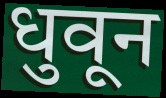
धुवून